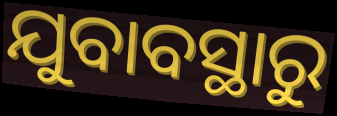
ଯୁବାବସ୍ଥାରୁ